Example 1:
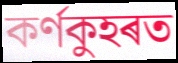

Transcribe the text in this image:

কৰ্ণকুহৰত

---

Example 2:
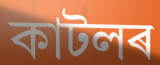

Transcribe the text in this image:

কাটলৰ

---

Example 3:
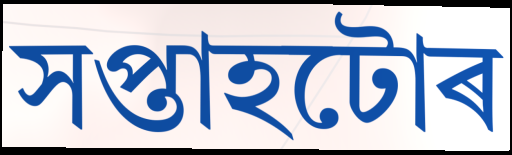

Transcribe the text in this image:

সপ্তাহটোৰ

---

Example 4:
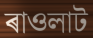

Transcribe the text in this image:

ৰাওলাট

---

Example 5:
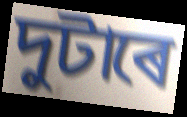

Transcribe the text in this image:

দুটাৰে